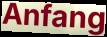
Anfang